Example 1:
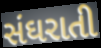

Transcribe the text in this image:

સંઘરાતી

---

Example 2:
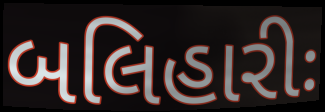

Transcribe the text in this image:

બલિહારીઃ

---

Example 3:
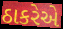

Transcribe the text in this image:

ઠાકરેએ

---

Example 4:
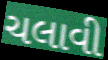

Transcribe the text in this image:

ચલાવી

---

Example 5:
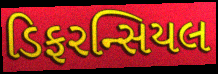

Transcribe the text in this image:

ડિફરન્સિયલ